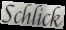
Schlick